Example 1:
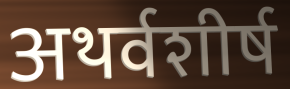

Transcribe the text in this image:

अथर्वशीर्ष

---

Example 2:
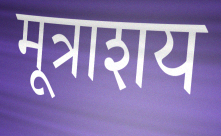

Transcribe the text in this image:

मूत्राशय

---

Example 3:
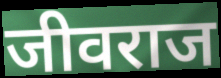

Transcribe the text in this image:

जीवराज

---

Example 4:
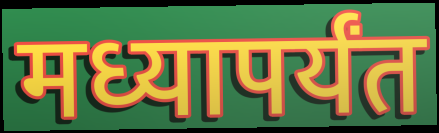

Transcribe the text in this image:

मध्यापर्यंत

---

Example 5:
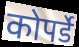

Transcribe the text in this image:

कोपर्डे